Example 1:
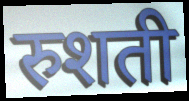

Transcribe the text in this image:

रुशती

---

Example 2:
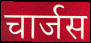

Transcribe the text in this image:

चार्जस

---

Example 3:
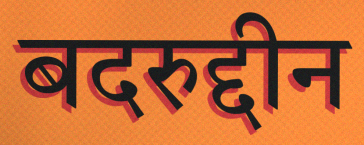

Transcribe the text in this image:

बदरुद्दीन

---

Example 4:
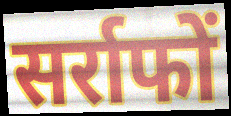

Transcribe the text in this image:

सर्राफों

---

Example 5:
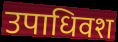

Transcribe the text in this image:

उपाधिवश